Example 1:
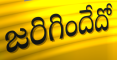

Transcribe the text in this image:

జరిగిందేదో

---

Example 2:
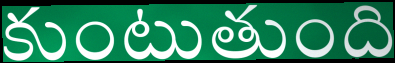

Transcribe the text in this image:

కుంటుతుంది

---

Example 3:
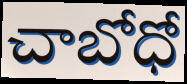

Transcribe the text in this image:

చాబోధో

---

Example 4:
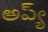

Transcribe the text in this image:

అప్య్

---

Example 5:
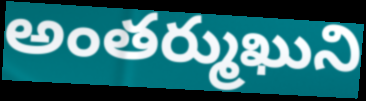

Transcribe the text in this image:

అంతర్ముఖుని